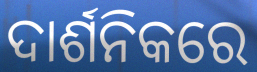
ଦାର୍ଶନିକରେ